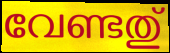
വേണ്ടതു്